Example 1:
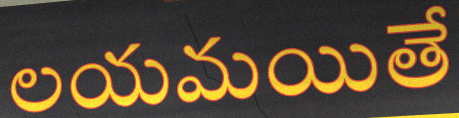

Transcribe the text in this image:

లయమయితే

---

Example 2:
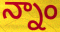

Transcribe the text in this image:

న్నాం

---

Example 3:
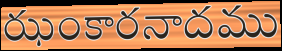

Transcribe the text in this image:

ఝంకారనాదము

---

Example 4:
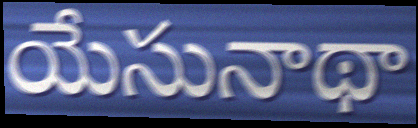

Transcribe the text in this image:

యేసునాథా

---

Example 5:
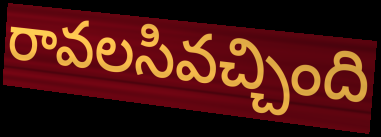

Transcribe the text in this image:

రావలసివచ్చింది